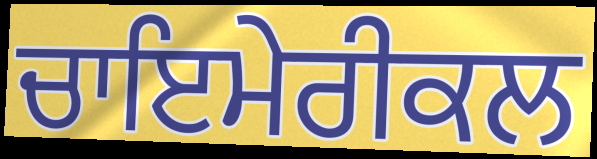
ਚਾਇਮੇਰੀਕਲ